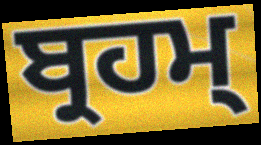
ਬ੍ਰਹਮ੍